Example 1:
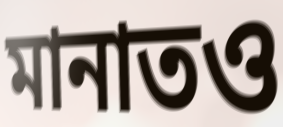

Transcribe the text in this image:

মানাতও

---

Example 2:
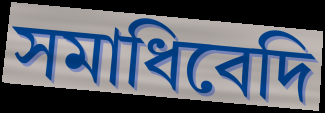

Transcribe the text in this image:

সমাধিবেদি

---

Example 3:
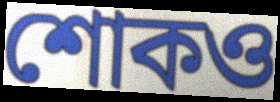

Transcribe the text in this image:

শোকও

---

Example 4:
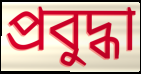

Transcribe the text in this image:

প্রবুদ্ধা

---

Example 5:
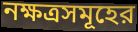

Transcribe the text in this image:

নক্ষত্রসমূহের